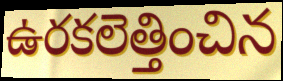
ఉరకలెత్తించిన